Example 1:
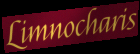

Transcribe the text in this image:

Limnocharis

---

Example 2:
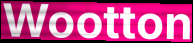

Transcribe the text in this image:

Wootton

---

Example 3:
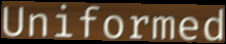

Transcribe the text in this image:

Uniformed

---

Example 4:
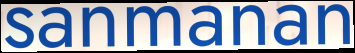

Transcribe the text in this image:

sanmanan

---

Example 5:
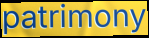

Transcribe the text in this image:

patrimony